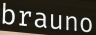
brauno